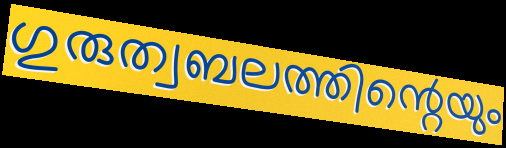
ഗുരുത്വബലത്തിന്റെയും